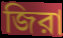
জিরা